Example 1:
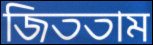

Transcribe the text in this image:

জিততাম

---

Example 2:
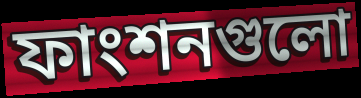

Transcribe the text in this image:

ফাংশনগুলো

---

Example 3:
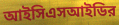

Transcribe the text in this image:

আইসিএসআইডির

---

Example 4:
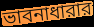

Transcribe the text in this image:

ভাবনাধারার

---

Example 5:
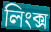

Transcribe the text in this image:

লিংক্স